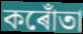
কৰোঁতা